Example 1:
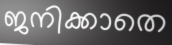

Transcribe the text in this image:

ജനിക്കാതെ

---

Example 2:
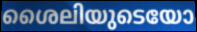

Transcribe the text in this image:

ശൈലിയുടെയോ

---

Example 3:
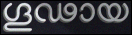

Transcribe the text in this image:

ഗൂഢായ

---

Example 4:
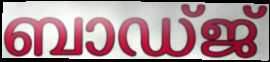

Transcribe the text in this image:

ബാഡ്ജ്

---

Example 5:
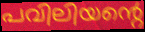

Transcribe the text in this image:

പവിലിയന്റെ